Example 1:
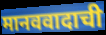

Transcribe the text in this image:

मानववादाची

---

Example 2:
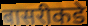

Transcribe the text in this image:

बासरीकडे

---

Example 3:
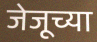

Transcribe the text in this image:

जेजूच्या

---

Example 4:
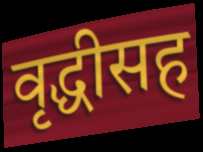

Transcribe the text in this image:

वृद्धीसह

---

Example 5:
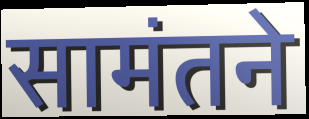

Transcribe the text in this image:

सामंतने